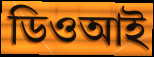
ডিওআই